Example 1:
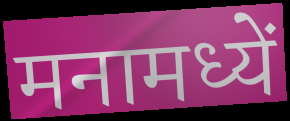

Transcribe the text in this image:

मनामध्यें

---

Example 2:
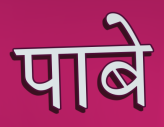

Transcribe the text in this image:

पाबे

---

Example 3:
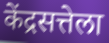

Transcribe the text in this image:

केंद्रसत्तेला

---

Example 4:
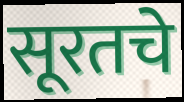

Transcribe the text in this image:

सूरतचे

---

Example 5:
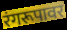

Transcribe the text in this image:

रंगरूपावर